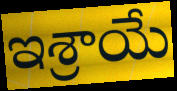
ఇశ్రాయే